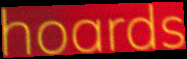
hoards